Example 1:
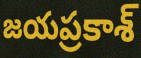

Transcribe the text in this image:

జయప్రకాశ్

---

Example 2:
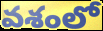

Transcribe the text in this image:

వశంలో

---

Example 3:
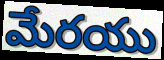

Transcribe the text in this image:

మేరయు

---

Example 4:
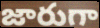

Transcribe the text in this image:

జారుగా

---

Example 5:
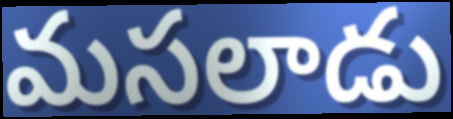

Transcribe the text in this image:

మసలాడు